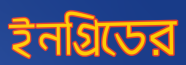
ইনগ্রিডের